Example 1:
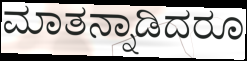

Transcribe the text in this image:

ಮಾತನ್ನಾಡಿದರೂ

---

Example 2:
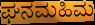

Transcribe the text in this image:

ಘನಮಹಿಮ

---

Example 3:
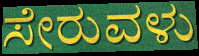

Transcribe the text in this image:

ಸೇರುವಳು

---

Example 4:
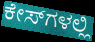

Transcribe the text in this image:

ಕೇಸ್‌ಗಳಲ್ಲಿ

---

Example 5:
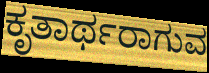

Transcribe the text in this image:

ಕೃತಾರ್ಥರಾಗುವ